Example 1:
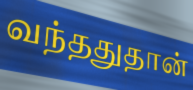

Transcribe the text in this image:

வந்ததுதான்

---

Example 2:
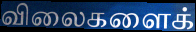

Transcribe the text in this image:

விலைகளைக்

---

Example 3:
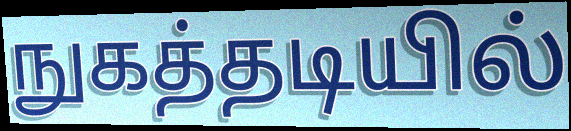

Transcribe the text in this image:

நுகத்தடியில்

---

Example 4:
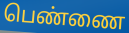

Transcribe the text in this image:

பெண்ணை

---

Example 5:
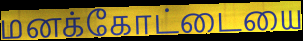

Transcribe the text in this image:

மனக்கோட்டையை